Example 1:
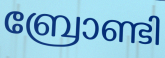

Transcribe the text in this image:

ബ്രോണ്ടി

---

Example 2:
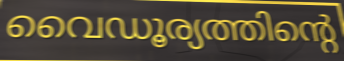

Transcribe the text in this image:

വൈഡൂര്യത്തിന്റെ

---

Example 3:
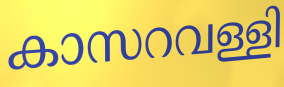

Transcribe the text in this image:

കാസറവള്ളി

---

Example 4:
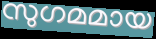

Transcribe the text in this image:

സുഗമമായ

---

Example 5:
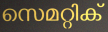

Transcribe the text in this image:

സെമറ്റിക്